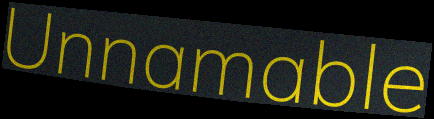
Unnamable